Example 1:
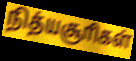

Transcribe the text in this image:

நித்யசூரிகள்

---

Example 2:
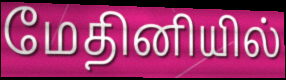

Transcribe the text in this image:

மேதினியில்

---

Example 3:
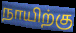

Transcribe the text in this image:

நாயிற்கு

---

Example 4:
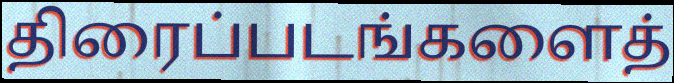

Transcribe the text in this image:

திரைப்படங்களைத்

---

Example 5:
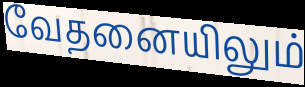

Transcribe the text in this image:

வேதனையிலும்